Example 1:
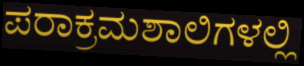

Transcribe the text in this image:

ಪರಾಕ್ರಮಶಾಲಿಗಳಲ್ಲಿ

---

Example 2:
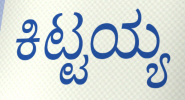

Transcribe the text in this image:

ಕಿಟ್ಟಯ್ಯ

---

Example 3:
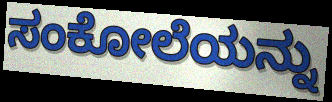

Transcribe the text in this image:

ಸಂಕೋಲೆಯನ್ನು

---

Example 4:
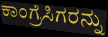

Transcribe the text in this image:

ಕಾಂಗ್ರೆಸಿಗರನ್ನು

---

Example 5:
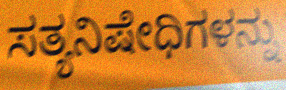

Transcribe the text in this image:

ಸತ್ಯನಿಷೇಧಿಗಳನ್ನು